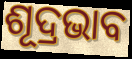
ଶୂଦ୍ରଭାବ